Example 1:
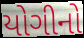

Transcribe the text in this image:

યોગીનો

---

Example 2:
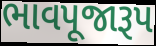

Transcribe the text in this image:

ભાવપૂજારૂપ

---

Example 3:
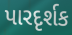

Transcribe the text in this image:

પારદૃર્શક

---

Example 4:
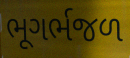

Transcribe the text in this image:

ભૂગર્ભજળ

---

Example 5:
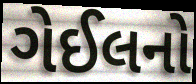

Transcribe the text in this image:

ગેઈલનો